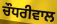
ਚੌਧਰੀਵਾਲ